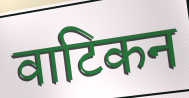
वाटिकन